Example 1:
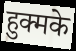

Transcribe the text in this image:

हुक्मके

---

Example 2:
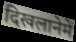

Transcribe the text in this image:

दिखलानेमें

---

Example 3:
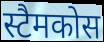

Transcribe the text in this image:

स्टैमकोस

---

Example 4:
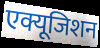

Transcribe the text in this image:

एक्यूजिशन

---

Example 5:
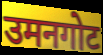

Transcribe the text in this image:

उमनगोट